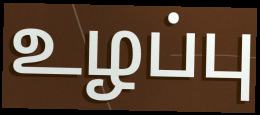
உழப்பு